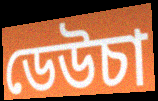
ডেউচা